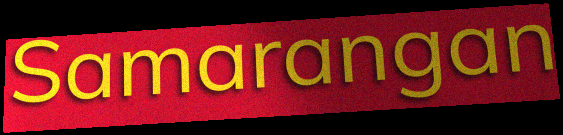
Samarangan